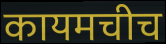
कायमचीच